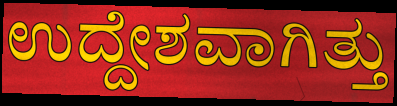
ಉದ್ದೇಶವಾಗಿತ್ತು